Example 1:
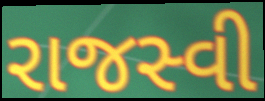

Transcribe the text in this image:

રાજસ્વી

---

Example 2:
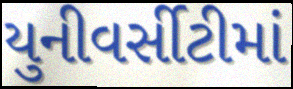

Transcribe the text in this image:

યુનીવર્સીટીમાં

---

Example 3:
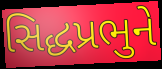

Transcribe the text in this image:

સિદ્ધપ્રભુને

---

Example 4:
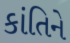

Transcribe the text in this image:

કાંતિને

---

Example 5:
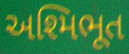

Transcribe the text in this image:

અશ્મિભૂત